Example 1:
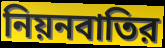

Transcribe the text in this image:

নিয়নবাতির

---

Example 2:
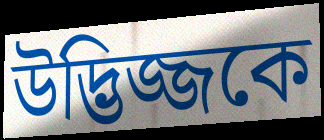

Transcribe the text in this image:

উদ্ভিজ্জকে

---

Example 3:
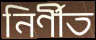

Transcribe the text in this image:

নির্ণীত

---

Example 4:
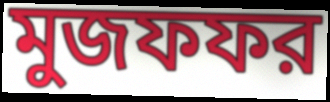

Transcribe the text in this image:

মুজফফর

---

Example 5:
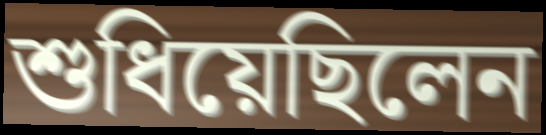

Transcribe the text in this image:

শুধিয়েছিলেন